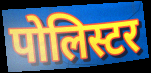
पोलिस्टर